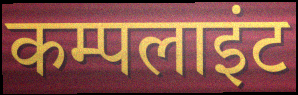
कम्पलाइंट